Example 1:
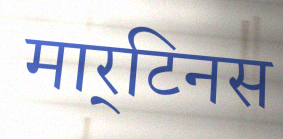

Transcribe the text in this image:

मार्टिनस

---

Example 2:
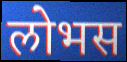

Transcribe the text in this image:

लोभस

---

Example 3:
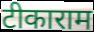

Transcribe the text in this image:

टीकाराम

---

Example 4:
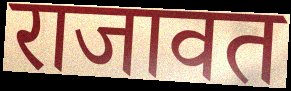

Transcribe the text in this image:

राजावत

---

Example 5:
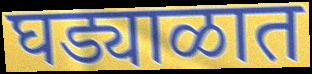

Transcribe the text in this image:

घड्याळात